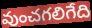
వుంచగలిగేది